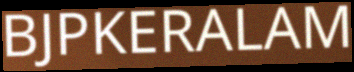
BJPKERALAM